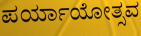
ಪರ್ಯಾಯೋತ್ಸವ